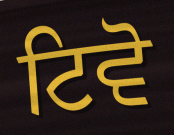
ਟਿਵੋ